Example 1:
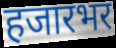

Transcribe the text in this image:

हजारभर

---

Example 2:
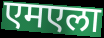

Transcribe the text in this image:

एमएला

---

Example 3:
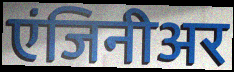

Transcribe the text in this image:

एंजिनीअर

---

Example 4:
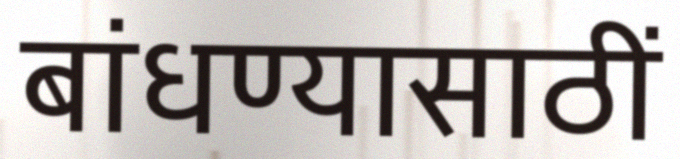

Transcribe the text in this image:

बांधण्यासाठीं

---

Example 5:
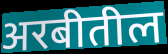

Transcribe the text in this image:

अरबीतील